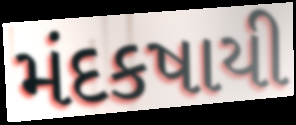
મંદકષાયી